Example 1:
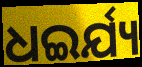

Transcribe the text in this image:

ଧଇର୍ଯ୍ୟ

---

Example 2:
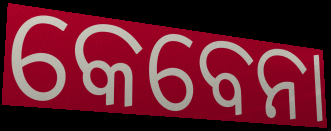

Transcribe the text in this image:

କେବେନା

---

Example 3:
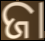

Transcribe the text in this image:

ଜା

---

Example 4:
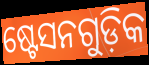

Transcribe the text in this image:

ଷ୍ଟେସନଗୁଡ଼ିକ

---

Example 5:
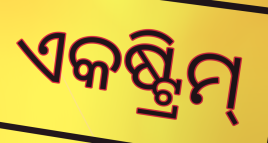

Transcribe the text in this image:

ଏକଷ୍ଟ୍ରିମ୍